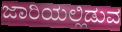
ಜಾರಿಯಲ್ಲಿಡುವ